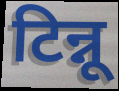
टिन्नू